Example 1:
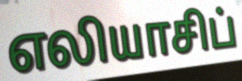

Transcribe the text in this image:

எலியாசிப்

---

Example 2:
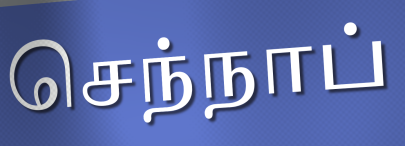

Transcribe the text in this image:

செந்நாப்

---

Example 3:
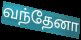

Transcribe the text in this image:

வந்தேனா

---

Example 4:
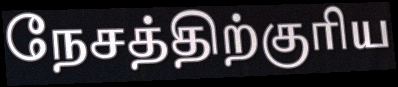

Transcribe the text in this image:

நேசத்திற்குரிய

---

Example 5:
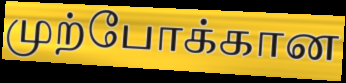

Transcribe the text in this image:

முற்போக்கான